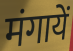
मंगायें